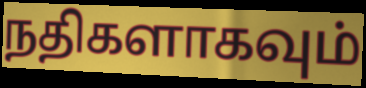
நதிகளாகவும்